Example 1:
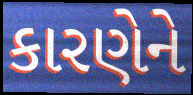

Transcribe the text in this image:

કારણેને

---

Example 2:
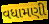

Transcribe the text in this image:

વધામણી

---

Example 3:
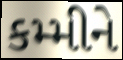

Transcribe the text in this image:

કમ્મીને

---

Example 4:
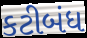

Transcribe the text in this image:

કટીબંધ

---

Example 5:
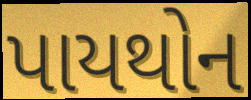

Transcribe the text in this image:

પાયથોન